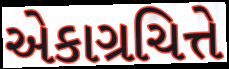
એકાગ્રચિત્તે